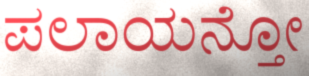
ಪಲಾಯನ್ತೋ